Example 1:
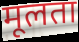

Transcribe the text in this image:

मूलता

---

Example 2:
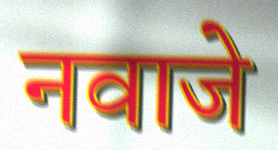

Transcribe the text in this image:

नवाजे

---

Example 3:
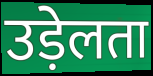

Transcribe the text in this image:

उड़ेलता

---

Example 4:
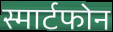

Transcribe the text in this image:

स्मार्टफोन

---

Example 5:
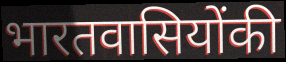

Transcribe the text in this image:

भारतवासियोंकी